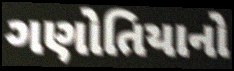
ગણોતિયાનો